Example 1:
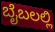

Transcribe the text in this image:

ಬೈಬಲಲ್ಲಿ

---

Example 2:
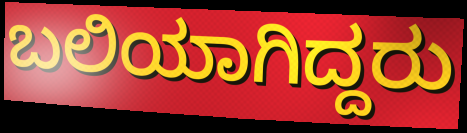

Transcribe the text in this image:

ಬಲಿಯಾಗಿದ್ದರು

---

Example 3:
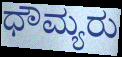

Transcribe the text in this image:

ಧೌಮ್ಯರು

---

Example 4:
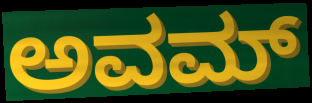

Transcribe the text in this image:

ಅವಮ್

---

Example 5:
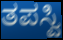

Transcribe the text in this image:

ತಪಸ್ವಿ